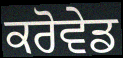
ਕਰੋਵੇਡ